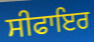
ਸੀਫਾਇਰ